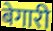
बेगारी